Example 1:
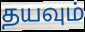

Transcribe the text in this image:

தயவும்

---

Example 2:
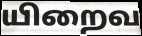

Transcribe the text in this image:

யிறைவ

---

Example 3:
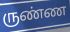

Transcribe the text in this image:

ருண்ண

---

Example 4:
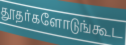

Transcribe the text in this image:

தூதர்களோடுங்கூட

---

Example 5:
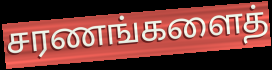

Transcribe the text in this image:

சரணங்களைத்